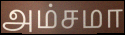
அம்சமா